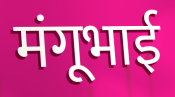
मंगूभाई